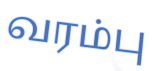
வரம்பு